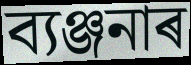
ব্যঞ্জনাৰ